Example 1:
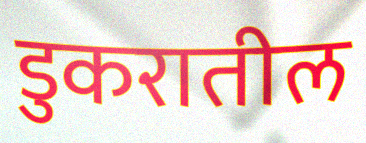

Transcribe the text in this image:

डुकरातील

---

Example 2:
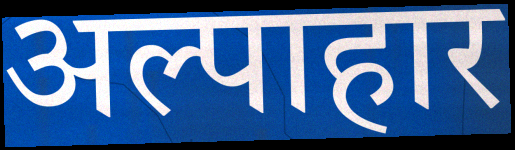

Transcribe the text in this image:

अल्पाहार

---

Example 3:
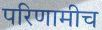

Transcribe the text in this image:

परिणामीच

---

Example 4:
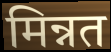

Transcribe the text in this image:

मिन्नत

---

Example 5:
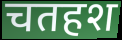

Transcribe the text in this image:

चतहश